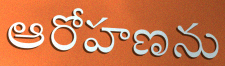
ఆరోహణను